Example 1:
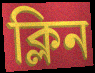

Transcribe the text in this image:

ক্লিন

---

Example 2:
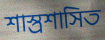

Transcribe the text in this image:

শাস্ত্রশাসিত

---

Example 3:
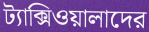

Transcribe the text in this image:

ট্যাক্সিওয়ালাদের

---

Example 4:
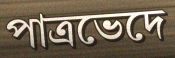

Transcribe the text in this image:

পাত্রভেদে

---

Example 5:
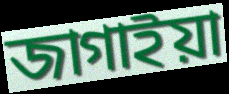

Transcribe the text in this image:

জাগাইয়া